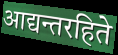
आद्यन्तरहिते